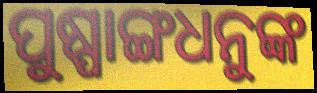
ପୁଷ୍ପାଙ୍ଗଧନୁଙ୍କ